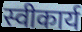
स्‍वीकार्य